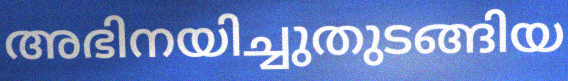
അഭിനയിച്ചുതുടങ്ങിയ